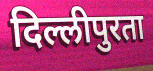
दिल्लीपुरता